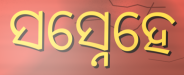
ସସ୍ନେହେ